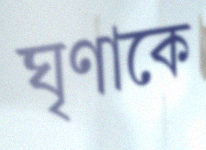
ঘৃণাকে